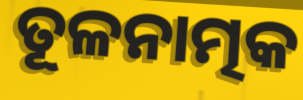
ତୂଳନାତ୍ମକ